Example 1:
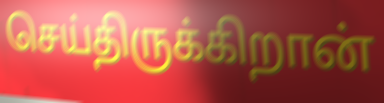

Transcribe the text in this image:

செய்திருக்கிறான்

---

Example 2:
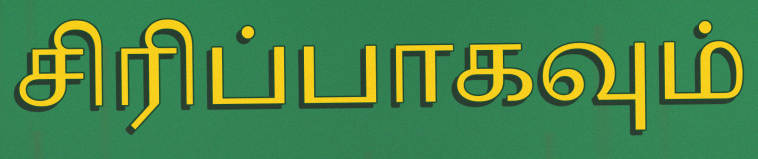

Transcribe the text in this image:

சிரிப்பாகவும்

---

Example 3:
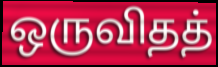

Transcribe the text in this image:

ஒருவிதத்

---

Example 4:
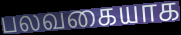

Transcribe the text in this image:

பலவகையாக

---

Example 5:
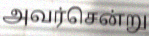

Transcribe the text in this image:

அவர்சென்று